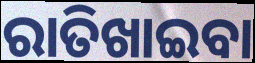
ରାତିଖାଇବା